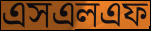
এসএলএফ